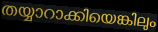
തയ്യാറാക്കിയെങ്കിലും